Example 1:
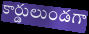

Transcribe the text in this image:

కార్డులుండగా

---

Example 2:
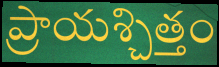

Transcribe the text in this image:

ప్రాయశ్చిత్తం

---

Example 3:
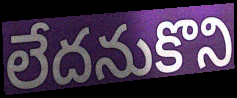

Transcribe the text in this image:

లేదనుకొని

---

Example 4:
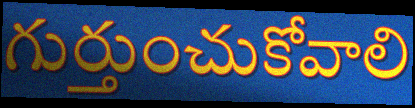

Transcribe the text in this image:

గుర్తుంచుకోవాలి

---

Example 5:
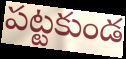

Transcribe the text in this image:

పట్టకుండ